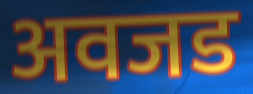
अवजड